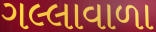
ગલ્લાવાળા